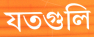
যতগুলি